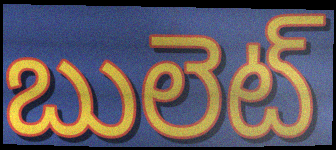
బులెట్